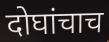
दोघांचाच